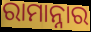
ରାମାନ୍ନାର